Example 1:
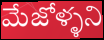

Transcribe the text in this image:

మేజోళ్ళని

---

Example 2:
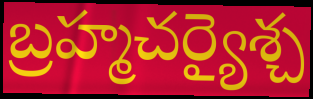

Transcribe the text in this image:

బ్రహ్మచర్యైశ్చ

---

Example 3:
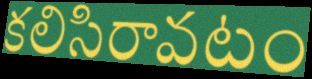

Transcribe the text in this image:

కలిసిరావటం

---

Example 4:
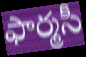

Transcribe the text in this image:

ఫార్మసీ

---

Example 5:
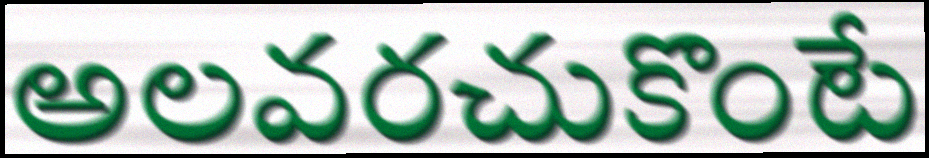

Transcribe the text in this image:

అలవరచుకొంటే